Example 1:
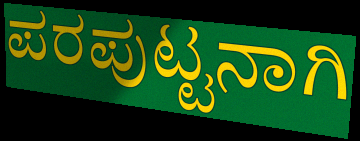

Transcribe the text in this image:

ಪರಪುಟ್ಟನಾಗಿ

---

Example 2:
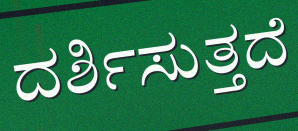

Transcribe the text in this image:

ದರ್ಶಿಸುತ್ತದೆ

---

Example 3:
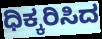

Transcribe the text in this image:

ಧಿಕ್ಕರಿಸಿದ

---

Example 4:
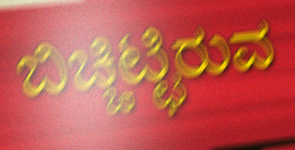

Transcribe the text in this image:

ಬಿಚ್ಚಿಟ್ಟಿರುವ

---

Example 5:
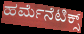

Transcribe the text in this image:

ಹರ್ಮೆನೆಟಿಕ್ಸ್